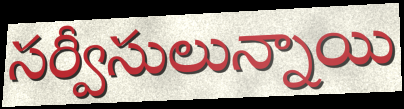
సర్వీసులున్నాయి